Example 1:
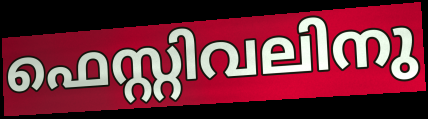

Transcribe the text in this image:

ഫെസ്റ്റിവലിനു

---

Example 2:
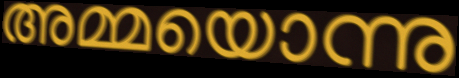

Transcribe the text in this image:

അമ്മയൊന്നു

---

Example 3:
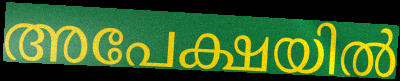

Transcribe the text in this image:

അപേക്ഷയിൽ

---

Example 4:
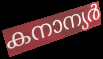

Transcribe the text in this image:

കനാന്യർ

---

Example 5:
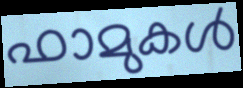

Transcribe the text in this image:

ഫാമുകൾ